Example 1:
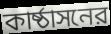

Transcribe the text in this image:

কাষ্ঠাসনের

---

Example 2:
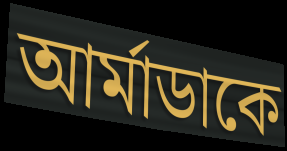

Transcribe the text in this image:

আর্মাডাকে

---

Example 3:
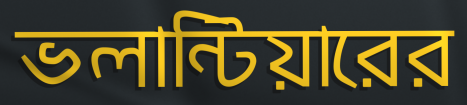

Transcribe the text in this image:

ভলান্টিয়ারের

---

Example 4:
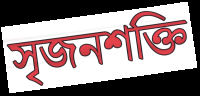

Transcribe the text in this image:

সৃজনশক্তি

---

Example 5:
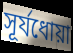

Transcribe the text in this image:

সূর্যধোয়া